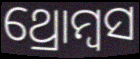
ଥ୍ରୋମ୍ବସ